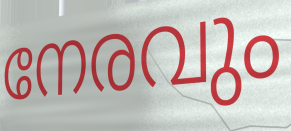
നേരവും